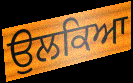
ਉਲਕਿਆ